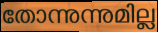
തോന്നുന്നുമില്ല